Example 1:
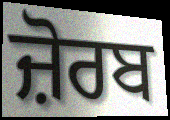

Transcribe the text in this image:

ਜ਼ੋਰਬ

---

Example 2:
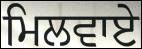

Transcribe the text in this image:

ਮਿਲਵਾਏ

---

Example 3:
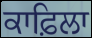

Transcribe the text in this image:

ਕਾਫ਼ਿਲਾ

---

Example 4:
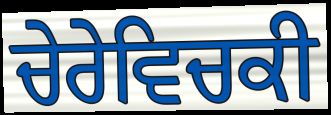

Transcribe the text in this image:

ਚੇਰੇਵਿਚਕੀ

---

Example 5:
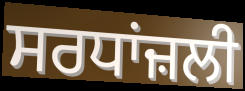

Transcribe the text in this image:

ਸਰਧਾਂਜ਼ਲੀ